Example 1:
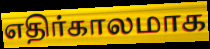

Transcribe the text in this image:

எதிர்காலமாக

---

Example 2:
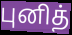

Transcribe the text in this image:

புனித்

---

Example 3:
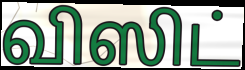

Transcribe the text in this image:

விஸிட்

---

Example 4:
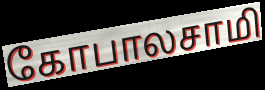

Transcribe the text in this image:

கோபாலசாமி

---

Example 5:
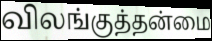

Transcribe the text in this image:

விலங்குத்தன்மை